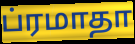
ப்ரமாதா